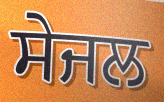
ਸੇਜਲ